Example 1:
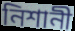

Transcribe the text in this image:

নিশানী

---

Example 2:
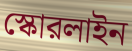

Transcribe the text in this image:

স্কোরলাইন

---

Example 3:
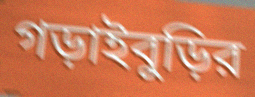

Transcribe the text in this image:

গড়াইবুড়ির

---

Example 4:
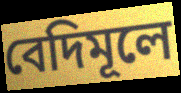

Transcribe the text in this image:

বেদিমূলে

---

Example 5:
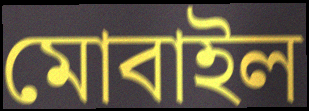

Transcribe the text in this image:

মোবাইল